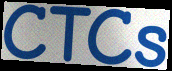
CTCs